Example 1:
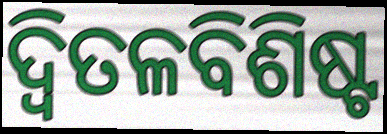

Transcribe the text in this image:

ଦ୍ୱିତଳବିଶିଷ୍ଟ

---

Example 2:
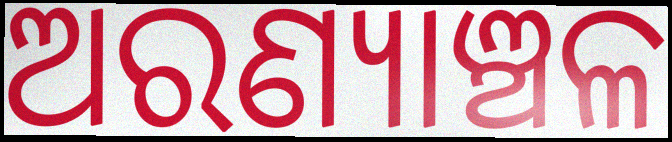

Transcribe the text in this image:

ଅରଣ୍ୟାଞ୍ଚଳ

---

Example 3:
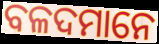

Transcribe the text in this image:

ବଳଦମାନେ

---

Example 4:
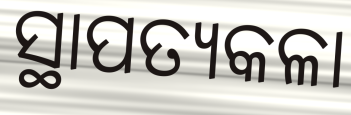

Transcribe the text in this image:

ସ୍ଥାପତ୍ୟକଳା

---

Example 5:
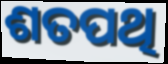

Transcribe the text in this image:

ଶତପଥି